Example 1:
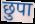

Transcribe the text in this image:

छुपा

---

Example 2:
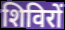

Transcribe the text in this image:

शिविरों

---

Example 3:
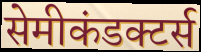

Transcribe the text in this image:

सेमीकंडक्टर्स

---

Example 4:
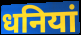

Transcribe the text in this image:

धनियां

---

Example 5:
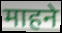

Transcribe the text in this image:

माहने